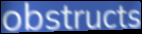
obstructs